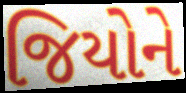
જિયોને